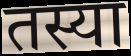
तस्या